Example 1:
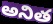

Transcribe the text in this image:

అనిత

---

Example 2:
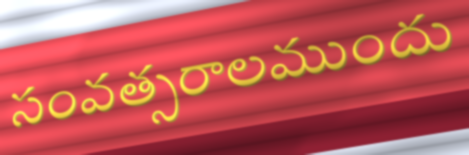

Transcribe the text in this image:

సంవత్సరాలముందు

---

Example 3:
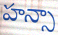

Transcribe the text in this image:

హన్సా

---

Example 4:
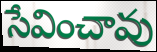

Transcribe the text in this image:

సేవించావు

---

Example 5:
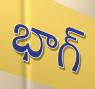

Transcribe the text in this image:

భాగ్